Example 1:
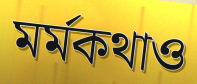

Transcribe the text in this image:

মর্মকথাও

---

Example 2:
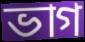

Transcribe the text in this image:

ভাগ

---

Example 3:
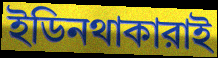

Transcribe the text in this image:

ইডিনথাকারাই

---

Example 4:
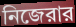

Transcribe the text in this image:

নিজেরার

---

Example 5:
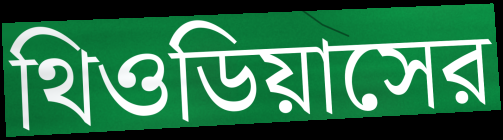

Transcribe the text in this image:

থিওডিয়াসের